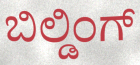
ಬಿಲ್ಡಿಂಗ್